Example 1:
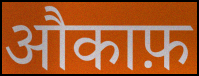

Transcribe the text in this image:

औकाफ़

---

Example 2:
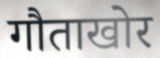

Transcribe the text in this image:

गौताखोर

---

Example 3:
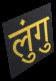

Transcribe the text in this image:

लुंगु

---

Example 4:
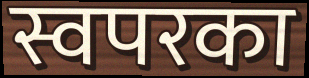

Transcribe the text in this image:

स्वपरका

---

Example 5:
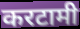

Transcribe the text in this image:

करटामी